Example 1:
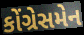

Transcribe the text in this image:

કોંગ્રેસમેન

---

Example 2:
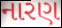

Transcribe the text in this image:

નારણ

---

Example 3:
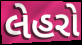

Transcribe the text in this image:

લેહરો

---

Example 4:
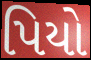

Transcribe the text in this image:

પિયો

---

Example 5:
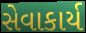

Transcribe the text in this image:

સેવાકાર્ય